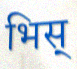
भिस्